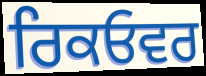
ਰਿਕਓਵਰ